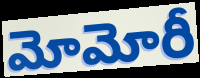
మోమోరీ